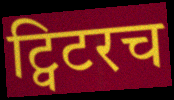
ट्विटरच